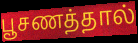
பூசணத்தால்